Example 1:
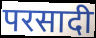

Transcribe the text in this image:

परसादी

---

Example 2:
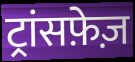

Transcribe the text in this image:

ट्रांसफ़ेज़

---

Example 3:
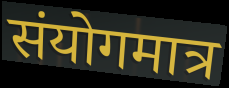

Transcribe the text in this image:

संयोगमात्र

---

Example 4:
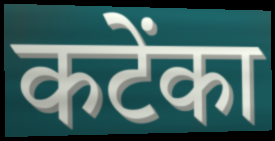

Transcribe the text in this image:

कटेंका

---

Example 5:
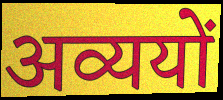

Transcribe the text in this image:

अव्ययों